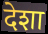
देशा